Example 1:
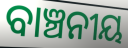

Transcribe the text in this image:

ବାଞ୍ଚନୀୟ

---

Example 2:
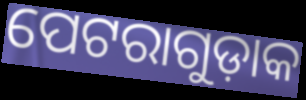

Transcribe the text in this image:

ପେଟରାଗୁଡ଼ାକ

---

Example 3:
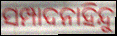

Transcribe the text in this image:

ସମ୍ପାଦନାହିନ୍ଦୁ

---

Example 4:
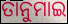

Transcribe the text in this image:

ତାନୁମାଇ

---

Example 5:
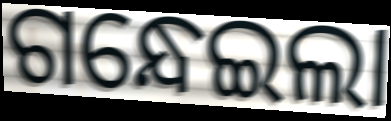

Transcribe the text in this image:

ଗନ୍ଧେଇଲା